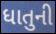
ધાતુની